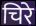
चिरे